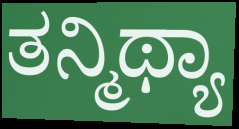
ತನ್ಮಿಥ್ಯಾ